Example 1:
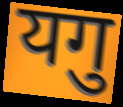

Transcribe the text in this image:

यगु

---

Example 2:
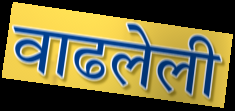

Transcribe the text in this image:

वाढलेली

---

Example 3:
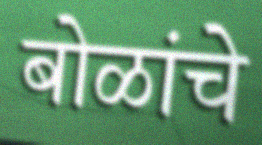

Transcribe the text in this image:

बोळांचे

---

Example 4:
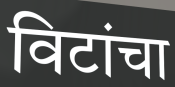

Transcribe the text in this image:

विटांचा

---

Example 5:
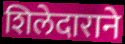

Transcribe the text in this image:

शिलेदाराने